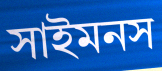
সাইমনস